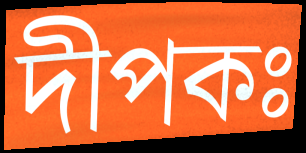
দীপকঃ